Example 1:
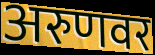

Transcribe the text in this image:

अरुणवर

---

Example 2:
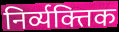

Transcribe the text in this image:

निर्व्यक्तिक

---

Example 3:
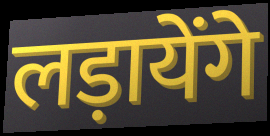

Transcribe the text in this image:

लड़ायेंगे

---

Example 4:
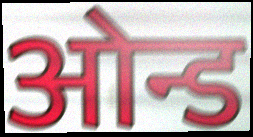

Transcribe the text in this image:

ओन्ड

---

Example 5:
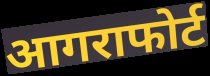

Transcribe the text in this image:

आगराफोर्ट